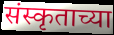
संस्कृताच्या